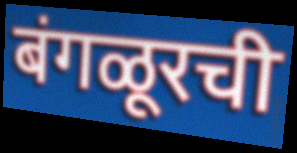
बंगळूरची